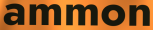
ammon